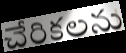
చేరికలను